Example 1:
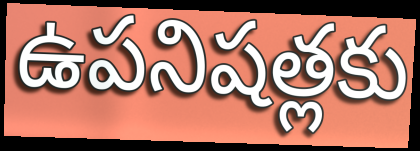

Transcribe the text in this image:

ఉపనిషత్లకు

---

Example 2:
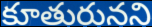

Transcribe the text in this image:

కూతురునని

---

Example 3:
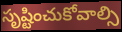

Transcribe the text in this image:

సృష్టించుకోవాల్సి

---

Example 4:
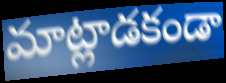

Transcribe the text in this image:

మాట్లాడకండా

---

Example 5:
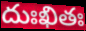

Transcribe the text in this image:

దుఃఖితః